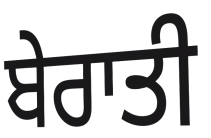
ਬੇਰਾਤੀ